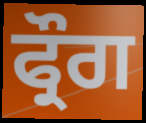
ਫ੍ਰੌਗ